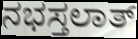
ನಭಸ್ತಲಾತ್